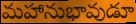
మహానుభావుడూ